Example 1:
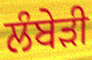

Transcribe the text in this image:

ਲੰਬੇੜੀ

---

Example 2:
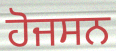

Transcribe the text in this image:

ਹੋਜਸਨ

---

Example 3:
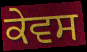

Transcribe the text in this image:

ਕੇਵਸ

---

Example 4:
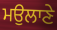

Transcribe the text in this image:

ਮਉਲਾਣੇ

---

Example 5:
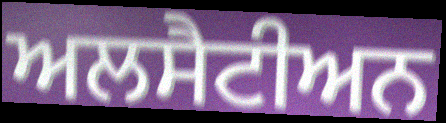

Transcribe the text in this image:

ਅਲਸੈਟੀਅਨ